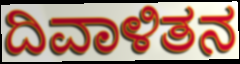
ದಿವಾಳಿತನ